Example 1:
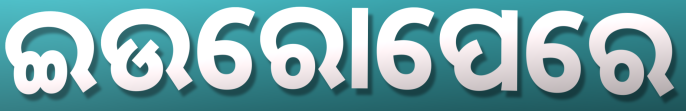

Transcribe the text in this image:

ଇଉରୋପେରେ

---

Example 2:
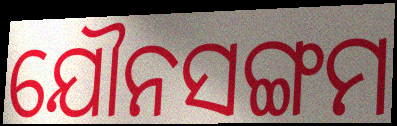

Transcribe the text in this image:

ଯୌନସଙ୍ଗମ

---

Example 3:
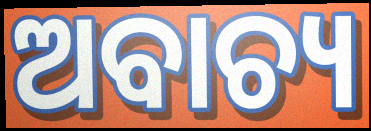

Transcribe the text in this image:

ଅବାଚ୍ୟ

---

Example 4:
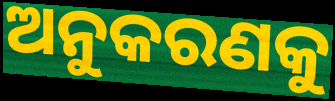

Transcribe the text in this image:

ଅନୁକରଣକୁ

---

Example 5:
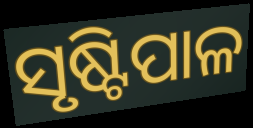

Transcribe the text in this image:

ସୃଷ୍ଟିପାଳ